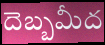
దెబ్బమీద